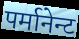
पर्मानेन्ट